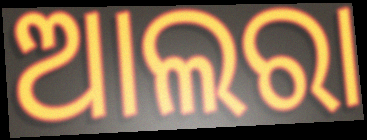
ଆଲରା